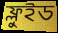
ফ্লুইড